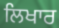
ਲਿਖਾਰ